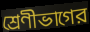
শ্রেণীভাগের